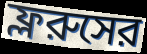
ফ্লরুসের